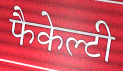
फैकेल्टी